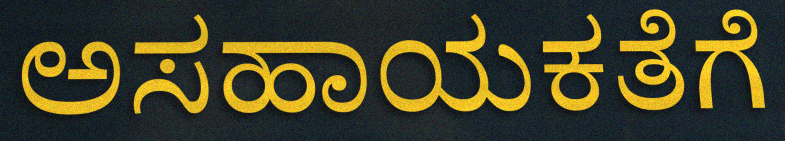
ಅಸಹಾಯಕತೆಗೆ